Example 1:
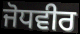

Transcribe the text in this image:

ਜੋਧਵੀਰ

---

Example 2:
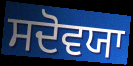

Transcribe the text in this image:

ਸਦੋਵਯਾ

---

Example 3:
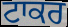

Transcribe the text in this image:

ਟਾਕਰ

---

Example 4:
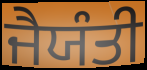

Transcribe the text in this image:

ਜੈਯੰਤੀ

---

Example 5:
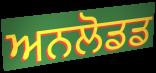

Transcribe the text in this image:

ਅਨਲੋਡਡ